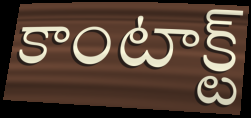
కాంటాక్ట్